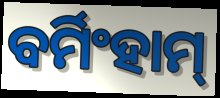
ବର୍ମିଂହାମ୍